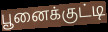
பூனைக்குட்டி